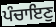
ਪੰਚਾਇਣੁ